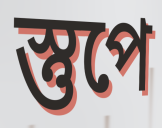
স্তুপে